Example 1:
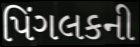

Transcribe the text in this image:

પિંગલકની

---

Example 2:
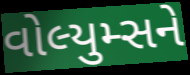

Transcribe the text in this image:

વોલ્યુમ્સને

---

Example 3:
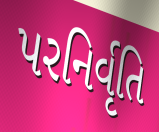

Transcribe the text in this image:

પરનિર્વૃતિ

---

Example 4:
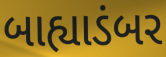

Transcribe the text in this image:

બાહ્યાડંબર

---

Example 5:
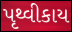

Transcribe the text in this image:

પૃથ્વીકાય